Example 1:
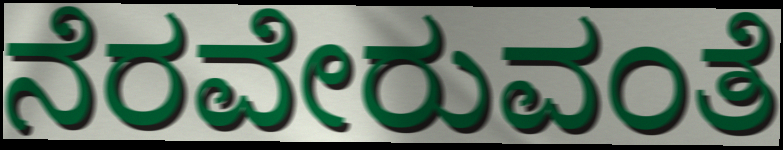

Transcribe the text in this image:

ನೆರವೇರುವಂತೆ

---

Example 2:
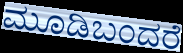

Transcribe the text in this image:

ಮೂಡಿಬಂದರೆ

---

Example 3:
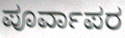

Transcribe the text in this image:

ಪೂರ್ವಾಪರ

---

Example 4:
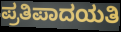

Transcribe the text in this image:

ಪ್ರತಿಪಾದಯತಿ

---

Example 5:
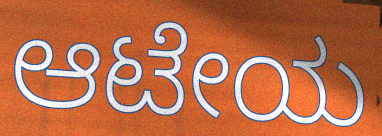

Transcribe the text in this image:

ಆಟೇಯ